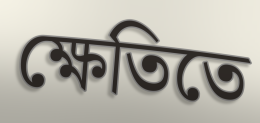
ক্ষেতিতে